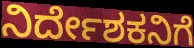
ನಿರ್ದೇಶಕನಿಗೆ